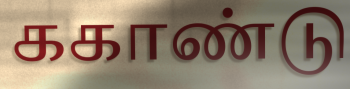
ககாண்டு